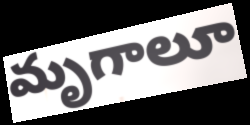
మృగాలూ